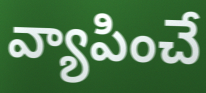
వ్యాపించే